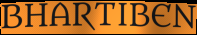
BHARTIBEN